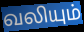
வலியும்